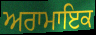
ਅਰਾਮਾਇਕ